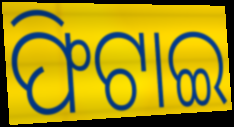
ଫିଟାଇ